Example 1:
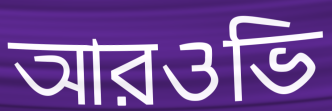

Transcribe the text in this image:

আরওভি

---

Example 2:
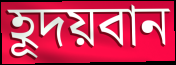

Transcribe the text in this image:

হূদয়বান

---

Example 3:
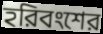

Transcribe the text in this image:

হরিবংশের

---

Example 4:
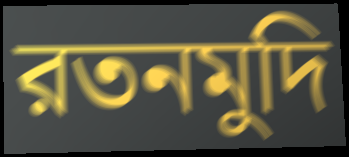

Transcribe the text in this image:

রতনমুদি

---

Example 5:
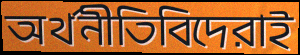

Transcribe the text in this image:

অর্থনীতিবিদেরাই